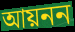
আয়নন